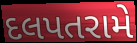
દલપતરામે